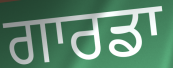
ਗਾਰਡਾ